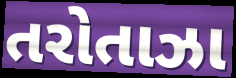
તરોતાઝા